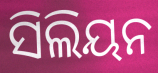
ସିଲିୟନ